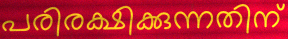
പരിരക്ഷിക്കുന്നതിന്